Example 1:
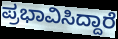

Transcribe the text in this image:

ಪ್ರಭಾವಿಸಿದ್ದಾರೆ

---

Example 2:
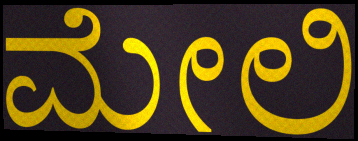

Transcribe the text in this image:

ಮೇಲಿ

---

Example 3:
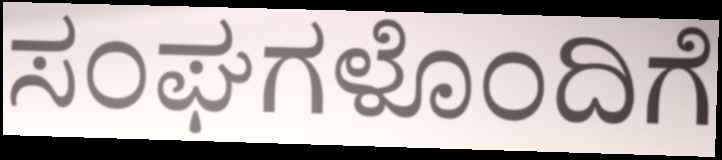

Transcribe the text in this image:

ಸಂಘಗಳೊಂದಿಗೆ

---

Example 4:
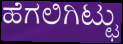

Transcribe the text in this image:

ಹೆಗಲಿಗಿಟ್ಟು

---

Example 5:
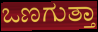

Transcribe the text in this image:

ಒಣಗುತ್ತಾ